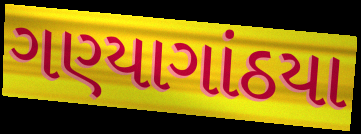
ગણ્યાગાંઠયા